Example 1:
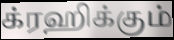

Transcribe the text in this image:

க்ரஹிக்கும்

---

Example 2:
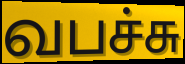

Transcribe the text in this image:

வபச்சு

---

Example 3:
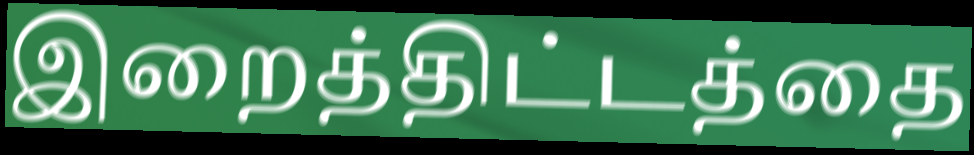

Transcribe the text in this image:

இறைத்திட்டத்தை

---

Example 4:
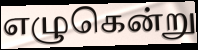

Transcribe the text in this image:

எழுகென்று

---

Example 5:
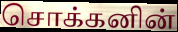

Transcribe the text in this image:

சொக்கனின்